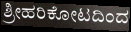
ಶ್ರೀಹರಿಕೋಟದಿಂದ